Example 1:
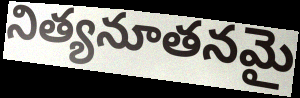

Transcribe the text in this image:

నిత్యనూతనమై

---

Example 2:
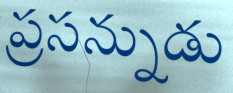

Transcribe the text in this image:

ప్రసన్నుడు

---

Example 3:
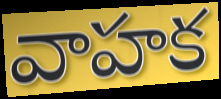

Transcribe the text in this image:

వాహక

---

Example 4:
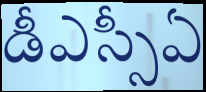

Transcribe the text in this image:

డీఎస్సీఏ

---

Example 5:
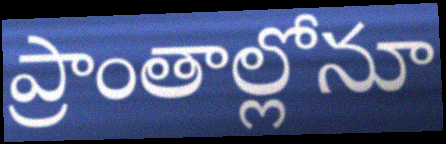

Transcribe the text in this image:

ప్రాంతాల్లోనూ